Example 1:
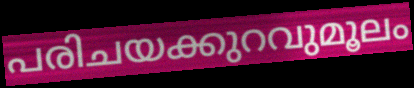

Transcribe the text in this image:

പരിചയക്കുറവുമൂലം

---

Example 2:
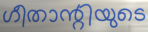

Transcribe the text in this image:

ഗീതാന്റിയുടെ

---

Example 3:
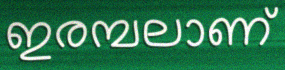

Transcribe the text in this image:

ഇരമ്പലാണ്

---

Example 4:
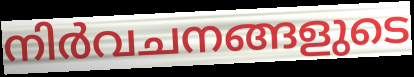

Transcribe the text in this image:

നിർവചനങ്ങളുടെ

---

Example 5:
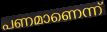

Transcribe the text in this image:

പണമാണെന്ന്